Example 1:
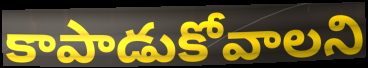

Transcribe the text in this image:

కాపాడుకోవాలని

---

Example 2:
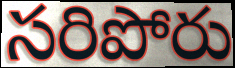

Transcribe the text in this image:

సరిపోరు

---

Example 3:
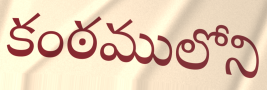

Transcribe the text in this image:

కంఠములోని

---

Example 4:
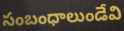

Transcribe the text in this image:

సంబంధాలుండేవి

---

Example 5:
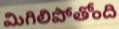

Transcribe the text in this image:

మిగిలిపోతోంది